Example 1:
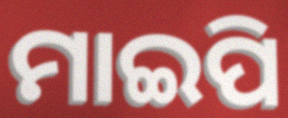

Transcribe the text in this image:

ମାଇପି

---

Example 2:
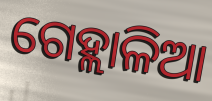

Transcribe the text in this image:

ଗେହ୍ଲାଳିଆ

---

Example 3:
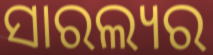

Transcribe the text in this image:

ସାରଲ୍ୟର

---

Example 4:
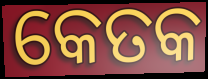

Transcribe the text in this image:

କେତକ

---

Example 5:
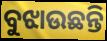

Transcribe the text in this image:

ବୁଝାଉଛନ୍ତି